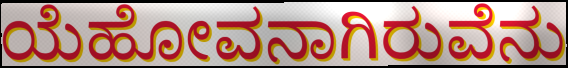
ಯೆಹೋವನಾಗಿರುವೆನು